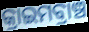
କ୍ରାଇମବ୍ରାଞ୍ଚ